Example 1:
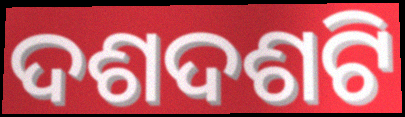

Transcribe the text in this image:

ଦଶଦଶଟି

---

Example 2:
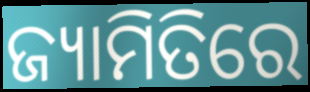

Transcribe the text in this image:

ଜ୍ୟାମିତିରେ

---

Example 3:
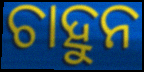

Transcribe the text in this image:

ଚାହୁନ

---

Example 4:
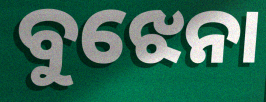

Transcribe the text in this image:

ବୁଝେନା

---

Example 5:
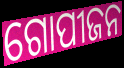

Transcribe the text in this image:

ଗୋପୀଜନ